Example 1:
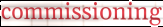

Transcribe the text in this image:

commissioning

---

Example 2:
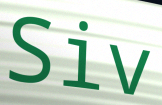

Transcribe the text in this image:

Siv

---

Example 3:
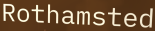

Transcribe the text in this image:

Rothamsted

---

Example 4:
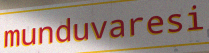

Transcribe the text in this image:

munduvaresi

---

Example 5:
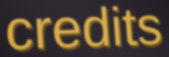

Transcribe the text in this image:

credits